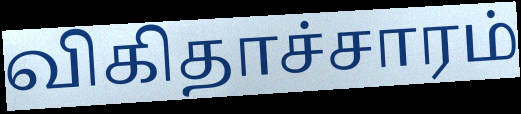
விகிதாச்சாரம்